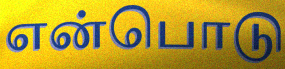
என்பொடு